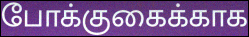
போக்குகைக்காக